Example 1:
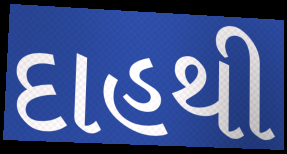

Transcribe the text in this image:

દાહથી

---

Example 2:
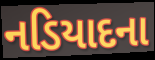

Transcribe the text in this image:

નડિયાદના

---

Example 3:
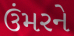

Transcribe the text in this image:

ઉંમરને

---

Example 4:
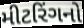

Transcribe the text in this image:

મીટરિંગનો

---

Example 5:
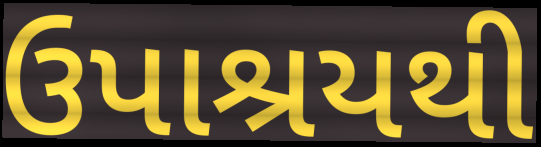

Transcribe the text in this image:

ઉપાશ્રયથી